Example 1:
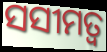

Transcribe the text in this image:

ସସୀମତ୍ୱ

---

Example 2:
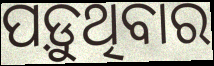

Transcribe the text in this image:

ପଡ଼ୁଥିବାର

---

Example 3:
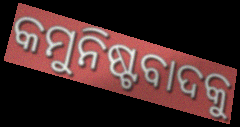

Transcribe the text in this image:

କମୁନିଷ୍ଟବାଦକୁ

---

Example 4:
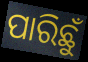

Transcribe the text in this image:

ପାରିଛୁଁ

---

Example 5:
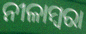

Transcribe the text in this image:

ନୀଳାମ୍ବରା